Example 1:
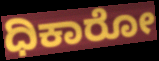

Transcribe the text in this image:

ಧಿಕಾರೋ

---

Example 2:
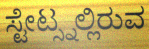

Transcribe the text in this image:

ಸ್ಟೇಟ್ಸ್ನಲ್ಲಿರುವ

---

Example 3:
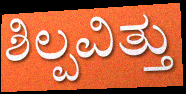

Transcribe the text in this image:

ಶಿಲ್ಪವಿತ್ತು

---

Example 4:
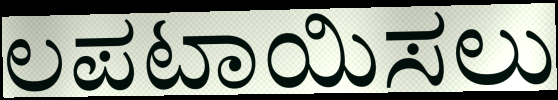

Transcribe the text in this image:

ಲಪಟಾಯಿಸಲು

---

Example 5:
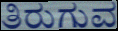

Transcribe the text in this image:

ತಿರುಗುವ